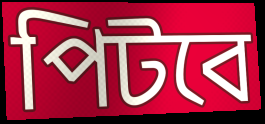
পিটবে